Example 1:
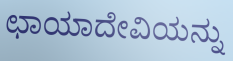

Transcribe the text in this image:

ಛಾಯಾದೇವಿಯನ್ನು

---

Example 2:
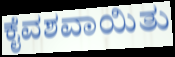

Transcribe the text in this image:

ಕೈವಶವಾಯಿತು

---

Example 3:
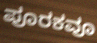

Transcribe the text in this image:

ಪೂರಕವೂ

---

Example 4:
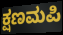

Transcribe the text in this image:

ಕ್ಷಣಮಪಿ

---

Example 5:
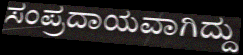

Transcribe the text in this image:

ಸಂಪ್ರದಾಯವಾಗಿದ್ದು